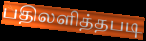
பதிலளித்தபடி